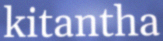
kitantha